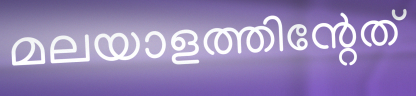
മലയാളത്തിന്റേത്